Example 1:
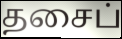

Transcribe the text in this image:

தசைப்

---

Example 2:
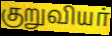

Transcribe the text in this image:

குறுவியர்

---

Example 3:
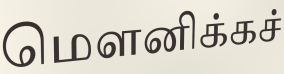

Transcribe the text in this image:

மௌனிக்கச்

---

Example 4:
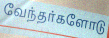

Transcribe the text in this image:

வேந்தர்களோடு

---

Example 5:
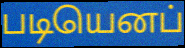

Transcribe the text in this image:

படியெனப்